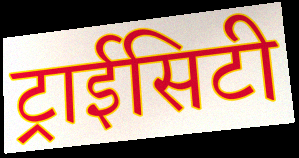
ट्राईसिटी